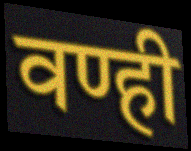
वण्ही